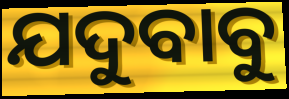
ଯଦୁବାବୁ